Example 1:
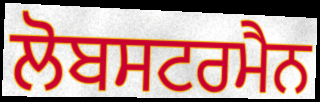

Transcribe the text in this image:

ਲੋਬਸਟਰਮੈਨ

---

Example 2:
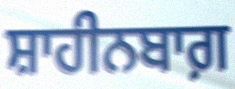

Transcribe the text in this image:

ਸ਼ਾਹੀਨਬਾਗ਼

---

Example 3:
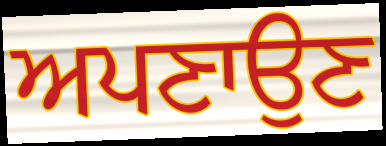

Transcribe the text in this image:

ਅਪਣਾਉਣ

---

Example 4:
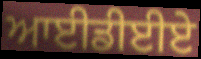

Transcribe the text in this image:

ਆਈਡੀਈਏ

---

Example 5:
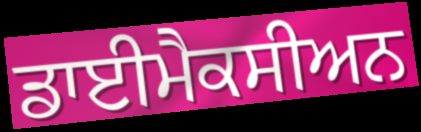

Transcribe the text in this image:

ਡਾਈਮੈਕਸੀਅਨ